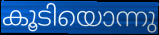
കൂടിയൊന്നു